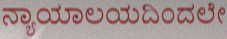
ನ್ಯಾಯಾಲಯದಿಂದಲೇ